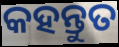
କହନ୍ତୁତ